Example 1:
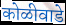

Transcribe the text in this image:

कोळीवाडे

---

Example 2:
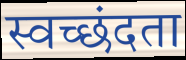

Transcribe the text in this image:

स्वच्छंदता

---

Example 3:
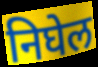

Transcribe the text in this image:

निघेल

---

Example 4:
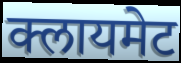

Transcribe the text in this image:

क्लायमेट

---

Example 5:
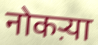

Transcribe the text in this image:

नोकऱ्‍या